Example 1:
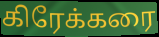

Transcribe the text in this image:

கிரேக்கரை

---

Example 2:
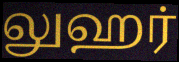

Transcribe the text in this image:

லுஹர்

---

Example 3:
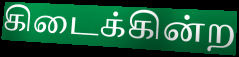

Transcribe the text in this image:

கிடைக்கின்ற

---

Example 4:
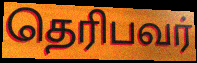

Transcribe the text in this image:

தெரிபவர்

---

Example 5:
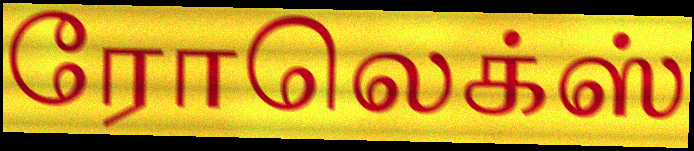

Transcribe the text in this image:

ரோலெக்ஸ்